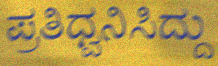
ಪ್ರತಿಧ್ವನಿಸಿದ್ದು